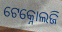
ଟେକ୍ନୋଲଜି